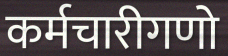
कर्मचारीगणो